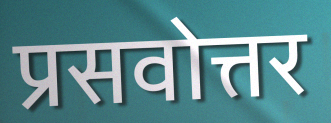
प्रसवोत्तर